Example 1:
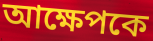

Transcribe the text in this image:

আক্ষেপকে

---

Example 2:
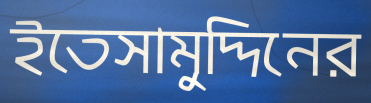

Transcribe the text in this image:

ইতেসামুদ্দিনের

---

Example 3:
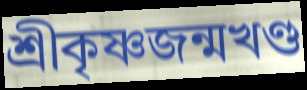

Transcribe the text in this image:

শ্রীকৃষ্ণজন্মখণ্ড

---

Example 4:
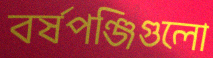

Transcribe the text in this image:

বর্ষপঞ্জিগুলো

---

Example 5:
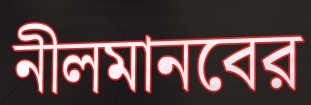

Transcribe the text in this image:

নীলমানবের